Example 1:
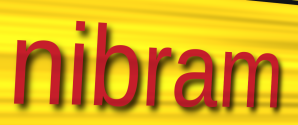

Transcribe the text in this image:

nibram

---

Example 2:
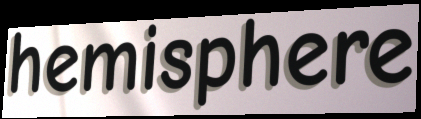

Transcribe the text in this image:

hemisphere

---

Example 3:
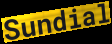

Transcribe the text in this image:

Sundial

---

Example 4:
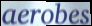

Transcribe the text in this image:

aerobes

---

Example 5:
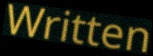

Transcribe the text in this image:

Written